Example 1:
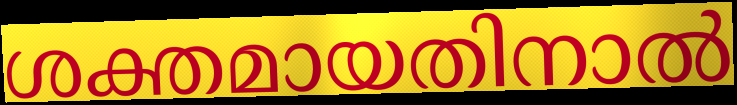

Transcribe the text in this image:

ശക്തമായതിനാൽ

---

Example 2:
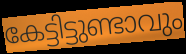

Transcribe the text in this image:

കേട്ടിട്ടുണ്ടാവും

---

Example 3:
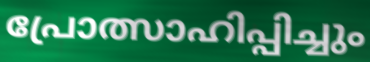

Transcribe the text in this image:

പ്രോത്സാഹിപ്പിച്ചും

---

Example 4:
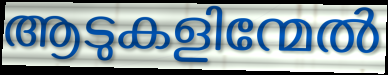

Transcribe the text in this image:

ആടുകളിന്മേൽ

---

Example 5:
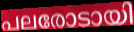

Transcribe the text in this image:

പലരോടായി